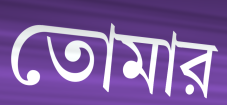
তোমার